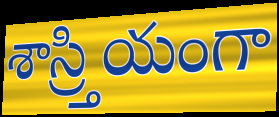
శాస్ర్తియంగా